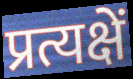
प्रत्यक्षें